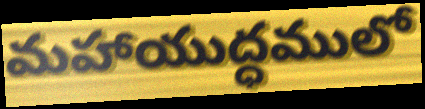
మహాయుద్ధములో